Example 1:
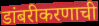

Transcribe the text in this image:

डांबरीकरणाची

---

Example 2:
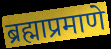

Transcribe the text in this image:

ब्रह्माप्रमाणे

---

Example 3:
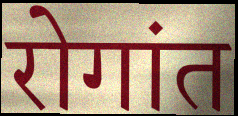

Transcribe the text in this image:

रोगांत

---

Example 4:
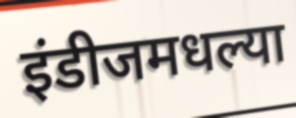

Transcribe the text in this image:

इंडीजमधल्या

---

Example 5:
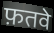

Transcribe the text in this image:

फ़तवे